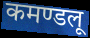
कमण्डलू